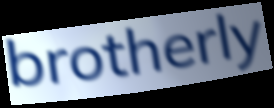
brotherly